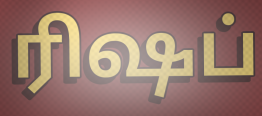
ரிஷப்